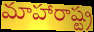
మాహారాష్ట్ర